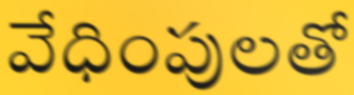
వేధింపులతో